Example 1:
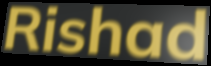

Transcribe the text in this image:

Rishad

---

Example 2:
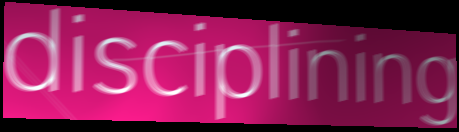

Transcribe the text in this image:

disciplining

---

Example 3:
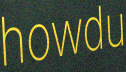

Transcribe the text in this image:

howdu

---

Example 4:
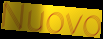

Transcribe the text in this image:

Nuovo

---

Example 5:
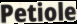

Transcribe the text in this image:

Petiole